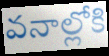
వనాల్లోకి